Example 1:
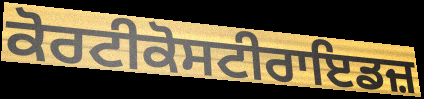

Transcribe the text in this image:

ਕੋਰਟੀਕੋਸਟੀਰਾਇਡਜ਼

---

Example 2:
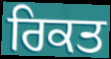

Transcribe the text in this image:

ਰਿਕਤ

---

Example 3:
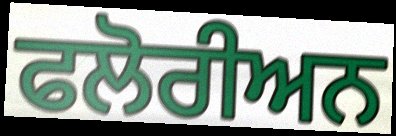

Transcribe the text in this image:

ਫਲੋਰੀਅਨ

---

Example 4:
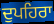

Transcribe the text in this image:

ਦੁਪਹਿਰਾ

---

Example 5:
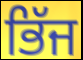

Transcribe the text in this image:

ਭਿੱਜ